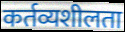
कर्तव्यशीलता